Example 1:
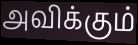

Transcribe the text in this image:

அவிக்கும்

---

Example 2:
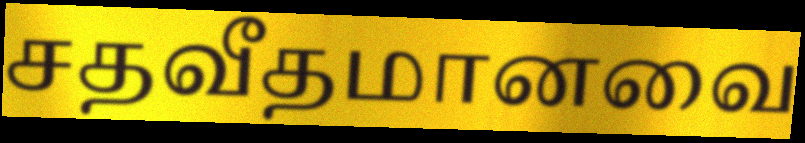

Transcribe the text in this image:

சதவீதமானவை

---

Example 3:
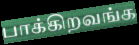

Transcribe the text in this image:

பாக்கிறவங்க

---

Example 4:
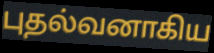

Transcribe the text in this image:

புதல்வனாகிய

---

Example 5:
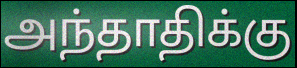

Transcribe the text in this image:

அந்தாதிக்கு